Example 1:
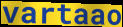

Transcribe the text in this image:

vartaao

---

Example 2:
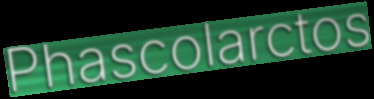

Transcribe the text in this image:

Phascolarctos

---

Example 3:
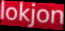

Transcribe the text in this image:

lokjon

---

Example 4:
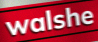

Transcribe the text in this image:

walshe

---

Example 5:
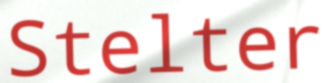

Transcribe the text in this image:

Stelter